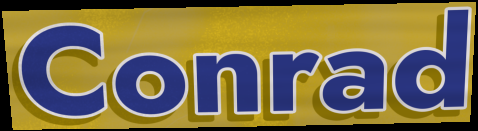
Conrad